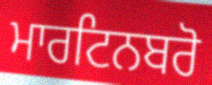
ਮਾਰਟਿਨਬਰੋ